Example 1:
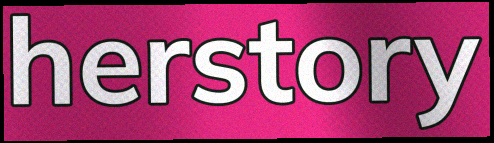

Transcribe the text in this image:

herstory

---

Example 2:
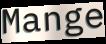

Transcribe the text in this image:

Mange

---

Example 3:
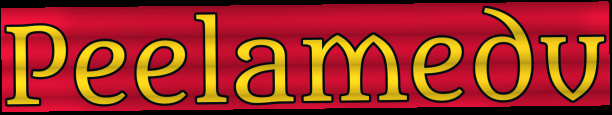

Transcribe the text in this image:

Peelamedu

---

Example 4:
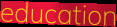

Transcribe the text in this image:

education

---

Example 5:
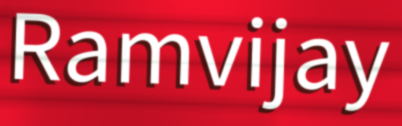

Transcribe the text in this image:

Ramvijay